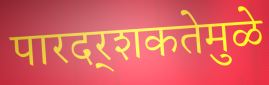
पारदर्शकतेमुळे